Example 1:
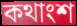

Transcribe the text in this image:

কথাংশ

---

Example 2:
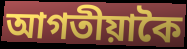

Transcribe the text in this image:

আগতীয়াকৈ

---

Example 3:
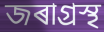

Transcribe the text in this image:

জৰাগ্ৰস্থ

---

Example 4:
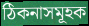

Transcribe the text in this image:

ঠিকনাসমূহক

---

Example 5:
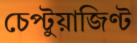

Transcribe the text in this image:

চেপ্টুয়াজিণ্ট